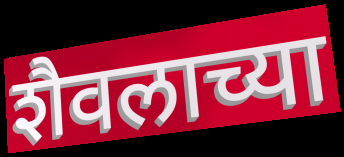
शैवलाच्या